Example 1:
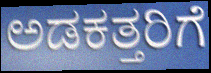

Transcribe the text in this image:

ಅಡಕತ್ತರಿಗೆ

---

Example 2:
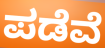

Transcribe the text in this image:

ಪಡೆವೆ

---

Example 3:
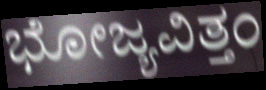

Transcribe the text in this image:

ಭೋಜ್ಯವಿತ್ತಂ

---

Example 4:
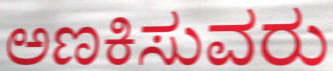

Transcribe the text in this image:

ಅಣಕಿಸುವರು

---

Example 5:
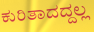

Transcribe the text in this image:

ಕುರಿತಾದದ್ದಲ್ಲ